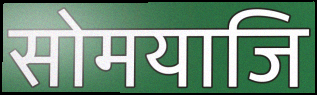
सोमयाजि